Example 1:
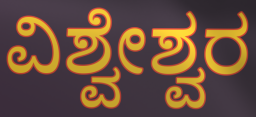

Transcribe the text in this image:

ವಿಶ್ವೇಶ್ವರ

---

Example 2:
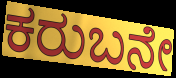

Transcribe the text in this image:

ಕರುಬನೇ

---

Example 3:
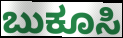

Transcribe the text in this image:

ಬುಕೂಸಿ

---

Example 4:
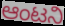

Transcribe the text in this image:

ಆಂಟನಿ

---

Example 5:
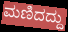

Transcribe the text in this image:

ಮಣಿದದ್ದು